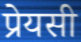
प्रेयसी